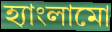
হ্যাংলামো